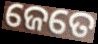
ଜେତେ